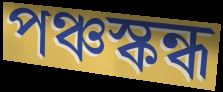
পঞ্চস্কন্ধ